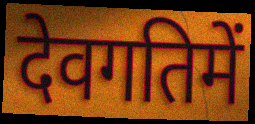
देवगतिमें